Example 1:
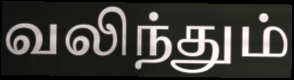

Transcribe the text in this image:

வலிந்தும்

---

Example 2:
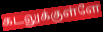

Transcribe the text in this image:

கடலுக்குள்ளே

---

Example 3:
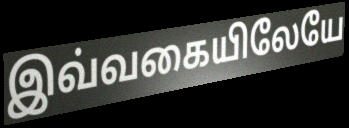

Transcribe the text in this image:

இவ்வகையிலேயே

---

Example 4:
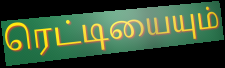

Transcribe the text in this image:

ரெட்டியையும்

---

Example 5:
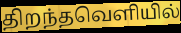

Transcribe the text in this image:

திறந்தவெளியில்